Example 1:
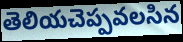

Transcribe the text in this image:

తెలియచెప్పవలసిన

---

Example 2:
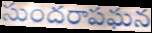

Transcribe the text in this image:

సుందరాపఘన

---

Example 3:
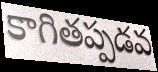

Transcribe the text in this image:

కాగితప్పడవ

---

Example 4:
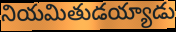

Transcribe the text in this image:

నియమితుడయ్యాడు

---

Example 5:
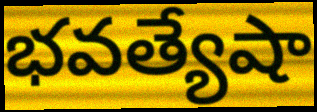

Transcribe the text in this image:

భవత్యేషా